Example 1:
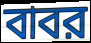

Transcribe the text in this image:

বাবর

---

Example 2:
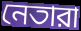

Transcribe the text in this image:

নেতারা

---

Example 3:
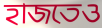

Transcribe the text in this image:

হাজতেও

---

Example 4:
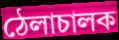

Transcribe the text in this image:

ঠেলাচালক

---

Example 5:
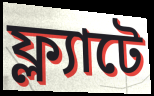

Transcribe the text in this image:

ফ্ল্যাটে